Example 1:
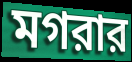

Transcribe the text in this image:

মগরার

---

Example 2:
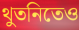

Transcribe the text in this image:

থুতনিতেও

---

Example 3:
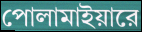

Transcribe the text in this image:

পোলামাইয়ারে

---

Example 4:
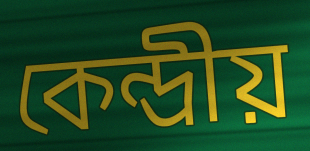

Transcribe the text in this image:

কেন্দ্রীয়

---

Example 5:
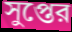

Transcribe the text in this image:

সুপ্তের